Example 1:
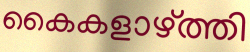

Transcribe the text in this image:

കൈകളാഴ്ത്തി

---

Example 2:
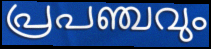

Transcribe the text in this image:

പ്രപഞ്ചവും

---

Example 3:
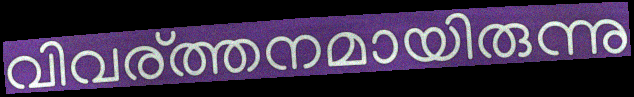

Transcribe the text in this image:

വിവര്ത്തനമായിരുന്നു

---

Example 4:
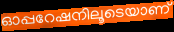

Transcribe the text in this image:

ഓപ്പറേഷനിലൂടെയാണ്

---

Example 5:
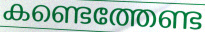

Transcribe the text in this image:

കണ്ടെത്തേണ്ട